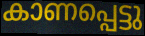
കാണപ്പെട്ടു